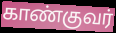
காண்குவர்